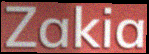
Zakia